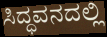
ಸಿದ್ಧವನದಲ್ಲಿ